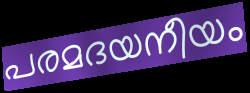
പരമദയനീയം